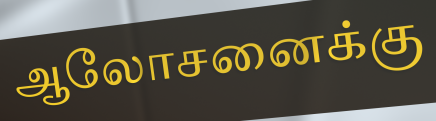
ஆலோசனைக்கு